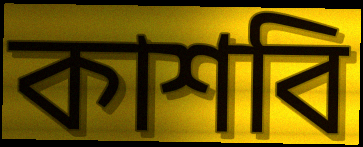
কাশবি